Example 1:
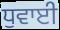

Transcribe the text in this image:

ਧੁਵਾਈ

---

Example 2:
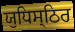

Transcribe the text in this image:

ਯੁਧਿਸ੍ਠਿਰ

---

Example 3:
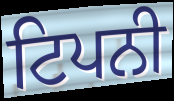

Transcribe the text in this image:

ਟਿਪਨੀ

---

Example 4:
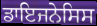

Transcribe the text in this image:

ਡਾਇਜਨੇਸਿਸ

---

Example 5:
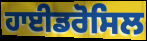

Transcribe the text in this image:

ਹਾਈਡਰੋਸਿਲ